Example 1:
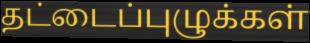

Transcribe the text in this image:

தட்டைப்புழுக்கள்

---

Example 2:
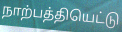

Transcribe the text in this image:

நாற்பத்தியெட்டு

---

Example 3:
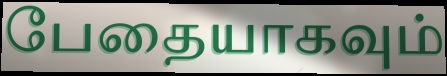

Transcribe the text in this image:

பேதையாகவும்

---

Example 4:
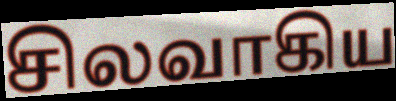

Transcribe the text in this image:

சிலவாகிய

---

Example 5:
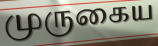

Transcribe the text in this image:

முருகைய